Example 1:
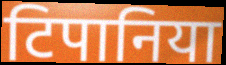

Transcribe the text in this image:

टिपानिया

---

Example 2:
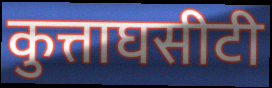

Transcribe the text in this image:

कुत्ताघसीटी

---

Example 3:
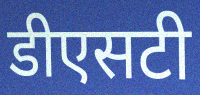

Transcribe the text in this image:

डीएसटी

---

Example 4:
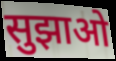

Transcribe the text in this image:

सुझाओ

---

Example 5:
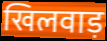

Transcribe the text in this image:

खिलवाड़